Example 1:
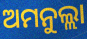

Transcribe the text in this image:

ଅମନୁଲ୍ଲା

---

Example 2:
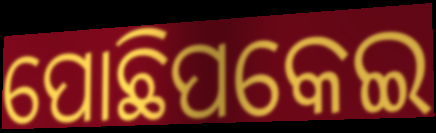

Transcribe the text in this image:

ପୋଛିପକେଇ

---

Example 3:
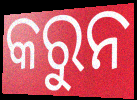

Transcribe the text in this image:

କରୁନ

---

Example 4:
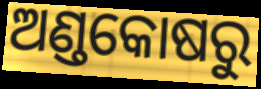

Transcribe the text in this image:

ଅଣ୍ଡକୋଷରୁ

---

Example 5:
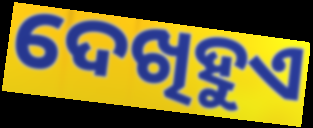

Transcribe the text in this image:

ଦେଖିହୁଏ